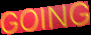
GOING